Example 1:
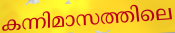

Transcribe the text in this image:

കന്നിമാസത്തിലെ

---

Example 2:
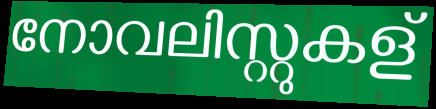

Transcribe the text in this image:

നോവലിസ്റ്റുകള്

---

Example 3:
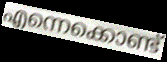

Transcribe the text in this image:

എന്നെക്കൊണ്ട്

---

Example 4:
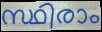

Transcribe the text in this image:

സ്ഥിരാം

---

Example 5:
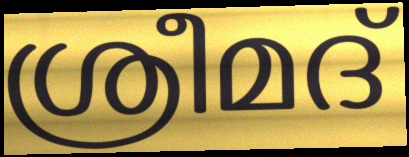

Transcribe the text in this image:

ശ്രീമദ്